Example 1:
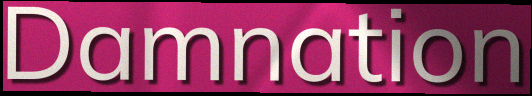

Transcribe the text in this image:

Damnation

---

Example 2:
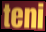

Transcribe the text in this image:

teni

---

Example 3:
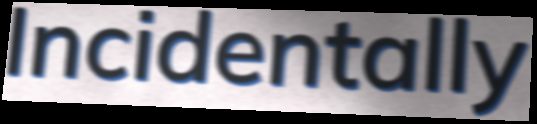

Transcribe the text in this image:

Incidentally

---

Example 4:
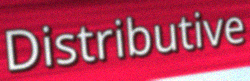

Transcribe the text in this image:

Distributive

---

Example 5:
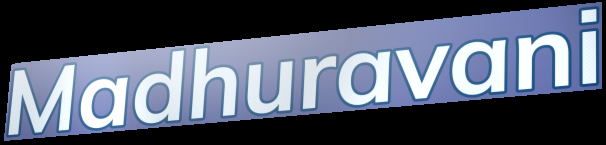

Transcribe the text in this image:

Madhuravani